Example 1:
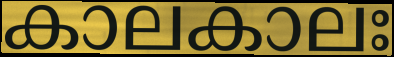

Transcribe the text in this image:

കാലകാലഃ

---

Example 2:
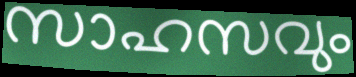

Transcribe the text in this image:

സാഹസവും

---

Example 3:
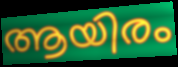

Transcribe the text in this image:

ആയിരം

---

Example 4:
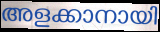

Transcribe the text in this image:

അളക്കാനായി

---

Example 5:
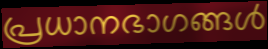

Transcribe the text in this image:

പ്രധാനഭാഗങ്ങൾ